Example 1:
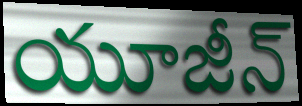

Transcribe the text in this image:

యూజీన్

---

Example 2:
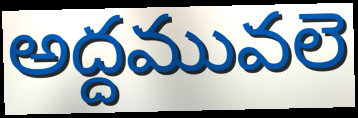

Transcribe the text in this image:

అద్దమువలె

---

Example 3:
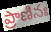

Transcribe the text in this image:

ప్రాణినః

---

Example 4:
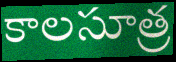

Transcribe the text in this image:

కాలసూత్ర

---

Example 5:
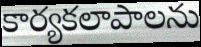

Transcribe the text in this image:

కార్యకలాపాలను